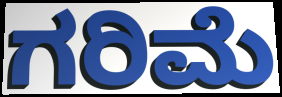
ಗರಿಮೆ